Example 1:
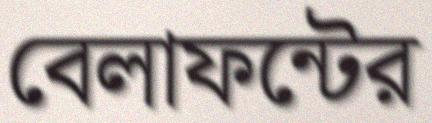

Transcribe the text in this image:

বেলাফন্টের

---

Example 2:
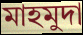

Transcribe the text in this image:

মাহমুদা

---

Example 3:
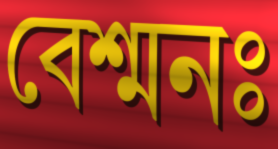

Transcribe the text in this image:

বেশ্মনঃ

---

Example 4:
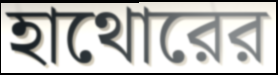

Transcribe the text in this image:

হাথোরের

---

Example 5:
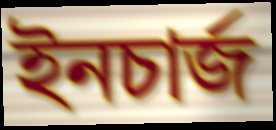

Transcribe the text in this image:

ইনচার্জ